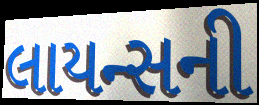
લાયન્સની